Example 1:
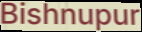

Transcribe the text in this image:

Bishnupur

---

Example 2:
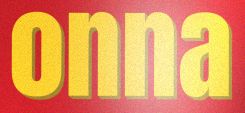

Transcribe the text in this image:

onna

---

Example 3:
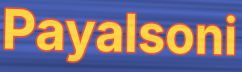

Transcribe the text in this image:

Payalsoni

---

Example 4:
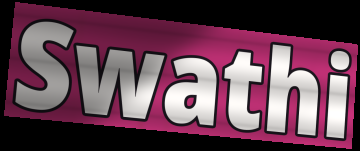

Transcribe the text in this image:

Swathi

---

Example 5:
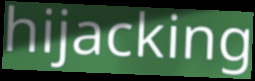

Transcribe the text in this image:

hijacking